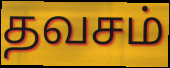
தவசம்